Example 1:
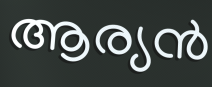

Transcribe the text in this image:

ആര്യൻ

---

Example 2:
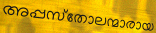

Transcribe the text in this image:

അപ്പസ്‌തോലന്മാരായ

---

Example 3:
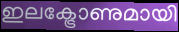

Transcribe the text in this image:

ഇലക്ട്രോണുമായി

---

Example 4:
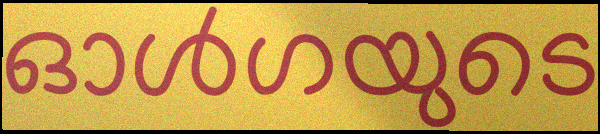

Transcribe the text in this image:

ഓൾഗയുടെ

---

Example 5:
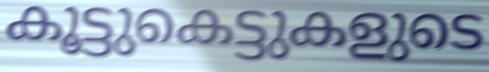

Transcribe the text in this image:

കൂട്ടുകെട്ടുകളുടെ